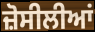
ਜ਼ੋਸੀਲੀਆਂ